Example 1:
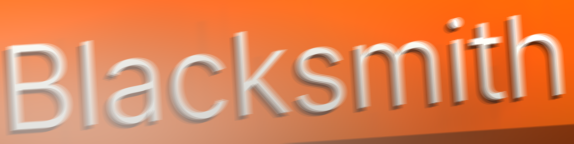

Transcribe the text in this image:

Blacksmith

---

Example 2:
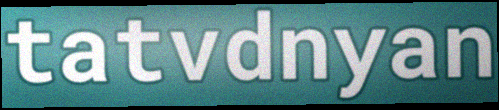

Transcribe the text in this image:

tatvdnyan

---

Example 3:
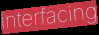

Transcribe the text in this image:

interfacing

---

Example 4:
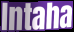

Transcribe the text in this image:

Intaha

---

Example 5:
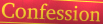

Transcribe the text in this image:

Confession